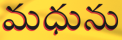
మధును